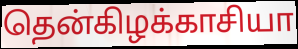
தென்கிழக்காசியா